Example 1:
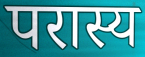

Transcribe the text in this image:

परास्य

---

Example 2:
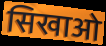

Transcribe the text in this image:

सिखाओ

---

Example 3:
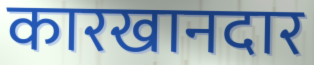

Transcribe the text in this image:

कारखानदार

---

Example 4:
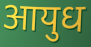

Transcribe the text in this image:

आयुध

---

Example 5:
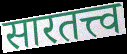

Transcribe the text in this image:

सारतत्त्व